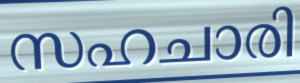
സഹചാരി